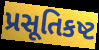
પ્રસૂતિકષ્ટ